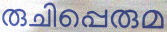
രുചിപ്പെരുമ